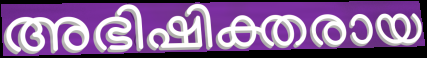
അഭിഷിക്തരായ